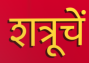
शत्रूचें